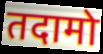
तदामो